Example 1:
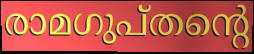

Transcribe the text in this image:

രാമഗുപ്തന്റെ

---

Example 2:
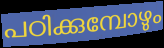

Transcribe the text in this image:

പഠിക്കുമ്പോഴും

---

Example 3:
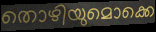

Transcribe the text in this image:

തൊഴിയുമൊക്കെ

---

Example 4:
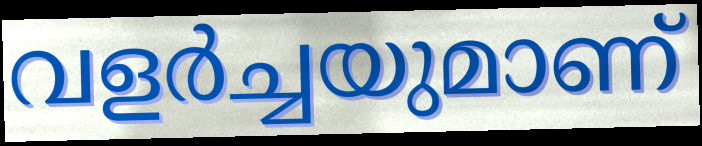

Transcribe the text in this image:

വളർച്ചയുമാണ്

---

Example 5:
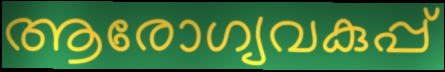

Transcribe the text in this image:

ആരോഗ്യവകുപ്പ്